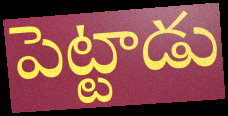
పెట్టాడు